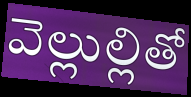
వెల్లుల్లితో